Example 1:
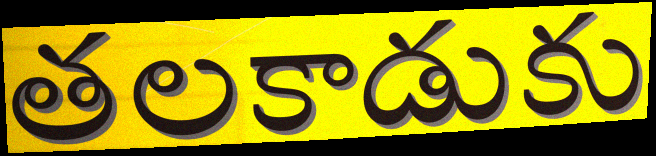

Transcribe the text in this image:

తలకాడుకు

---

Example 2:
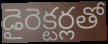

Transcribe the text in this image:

డైరెక్టర్లతో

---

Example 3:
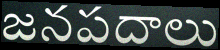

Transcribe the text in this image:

జనపదాలు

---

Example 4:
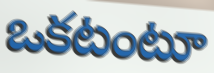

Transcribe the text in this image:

ఒకటంటూ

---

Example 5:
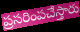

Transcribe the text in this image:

ప్రసరింపచేస్తారు